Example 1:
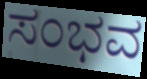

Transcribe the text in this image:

ಸಂಭವ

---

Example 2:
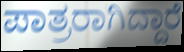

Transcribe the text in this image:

ಪಾತ್ರರಾಗಿದ್ದಾರೆ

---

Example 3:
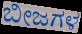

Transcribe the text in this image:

ಬೀಜಗಳ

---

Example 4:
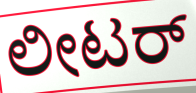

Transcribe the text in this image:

ಲೀಟರ್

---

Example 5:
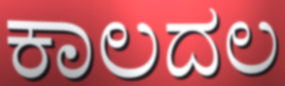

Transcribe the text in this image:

ಕಾಲದಲ